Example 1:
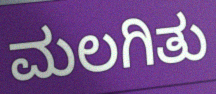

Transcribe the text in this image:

ಮಲಗಿತು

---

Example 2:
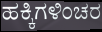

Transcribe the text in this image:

ಹಕ್ಕಿಗಳಿಂಚರ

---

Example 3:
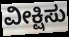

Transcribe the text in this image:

ವೀಕ್ಷಿಸು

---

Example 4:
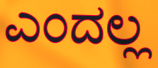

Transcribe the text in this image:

ಎಂದಲ್ಲ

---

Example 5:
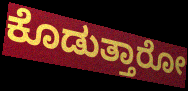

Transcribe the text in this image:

ಕೊಡುತ್ತಾರೋ